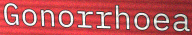
Gonorrhoea